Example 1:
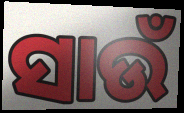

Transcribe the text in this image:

ସାଉଁ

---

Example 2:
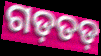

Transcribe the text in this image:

ଗଡ଼ତଡ଼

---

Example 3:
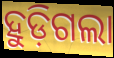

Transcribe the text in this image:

ହୁଡ଼ିଗଲା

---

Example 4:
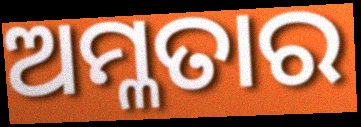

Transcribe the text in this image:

ଅମ୍ଳତାର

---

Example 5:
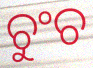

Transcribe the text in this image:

ଚୁଂଚ